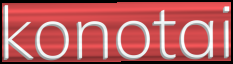
konotai